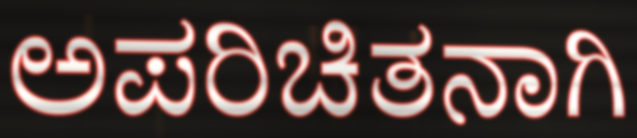
ಅಪರಿಚಿತನಾಗಿ